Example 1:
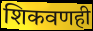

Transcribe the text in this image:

शिकवणही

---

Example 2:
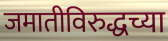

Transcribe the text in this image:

जमातीविरुद्धच्या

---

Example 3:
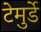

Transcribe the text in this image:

टेमुर्डे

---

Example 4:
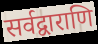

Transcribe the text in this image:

सर्वद्वाराणि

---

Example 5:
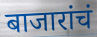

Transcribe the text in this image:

बाजारांचं